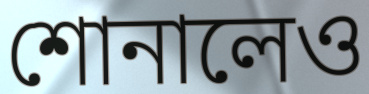
শোনালেও